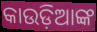
କାଉଡ଼ିଆଙ୍କ